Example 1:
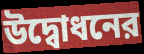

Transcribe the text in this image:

উদ্বোধনের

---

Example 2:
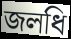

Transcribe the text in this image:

জলধি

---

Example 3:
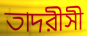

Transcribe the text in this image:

তাদরীসী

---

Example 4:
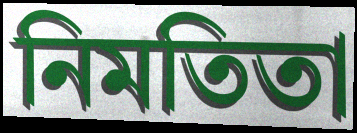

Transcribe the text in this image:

নিমতিতা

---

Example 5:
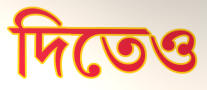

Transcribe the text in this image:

দিতেও